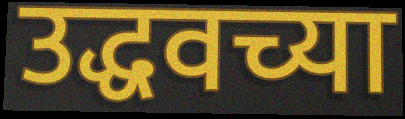
उद्धवच्या